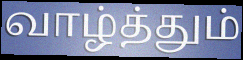
வாழ்த்தும்